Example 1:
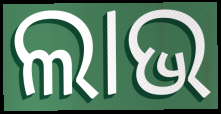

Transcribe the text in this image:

ଲାଭ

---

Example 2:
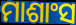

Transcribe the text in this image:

ମାଶାଂସ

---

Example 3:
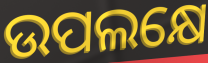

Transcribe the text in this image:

ଉପଲକ୍ଷେ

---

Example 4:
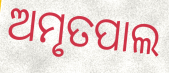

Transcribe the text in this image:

ଅମୃତପାଲ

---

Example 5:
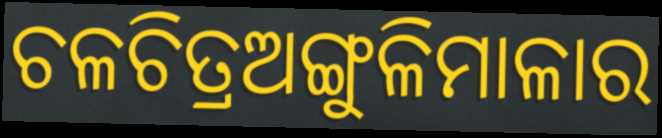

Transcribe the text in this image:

ଚଳଚିତ୍ରଅଙ୍ଗୁଳିମାଳାର